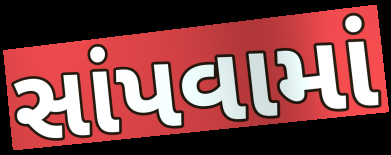
સાંપવામાં